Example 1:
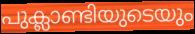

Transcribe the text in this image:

പുക്ലാണ്ടിയുടെയും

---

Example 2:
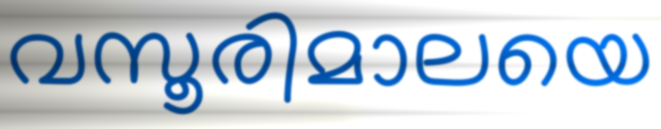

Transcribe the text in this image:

വസൂരിമാലയെ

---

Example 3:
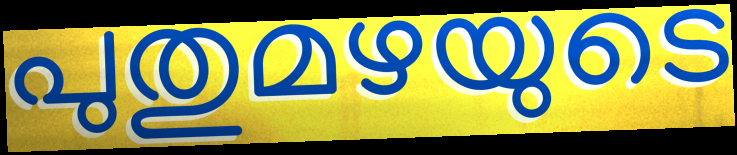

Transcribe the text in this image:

പുതുമഴയുടെ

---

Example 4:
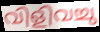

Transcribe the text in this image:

വിളിവച്ചു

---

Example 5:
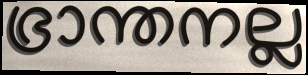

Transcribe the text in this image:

ഭ്രാന്തനല്ല